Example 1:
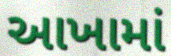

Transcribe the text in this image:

આખામાં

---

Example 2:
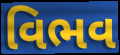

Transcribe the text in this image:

વિભવ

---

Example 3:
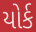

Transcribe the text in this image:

યોર્ક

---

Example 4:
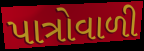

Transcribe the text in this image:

પાત્રોવાળી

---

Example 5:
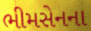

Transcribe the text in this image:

ભીમસેનના